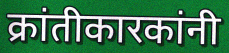
क्रांतीकारकांनी